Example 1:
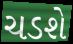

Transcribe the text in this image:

ચડશે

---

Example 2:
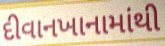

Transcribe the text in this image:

દીવાનખાનામાંથી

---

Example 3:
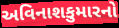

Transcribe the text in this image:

અવિનાશકુમારનો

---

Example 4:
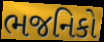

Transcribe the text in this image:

ભજનિકો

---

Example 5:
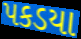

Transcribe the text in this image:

પકડયા